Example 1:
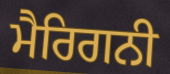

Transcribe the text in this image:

ਮੈਰਿਗਨੀ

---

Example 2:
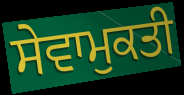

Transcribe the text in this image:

ਸੇਵਾਮੁਕਤੀ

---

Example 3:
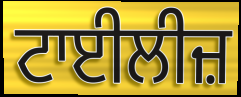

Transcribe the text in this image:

ਟਾਈਲੀਜ਼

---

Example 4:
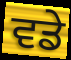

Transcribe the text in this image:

ਵਡੇ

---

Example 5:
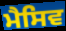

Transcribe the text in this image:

ਮੈਸਿਵ